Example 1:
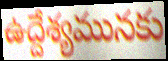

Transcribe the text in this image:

ఉద్దేశ్యమునకు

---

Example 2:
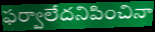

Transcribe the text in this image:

ఫర్వాలేదనిపించినా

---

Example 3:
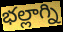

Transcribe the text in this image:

భల్లాగ్ని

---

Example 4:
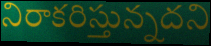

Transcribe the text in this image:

నిరాకరిస్తున్నదని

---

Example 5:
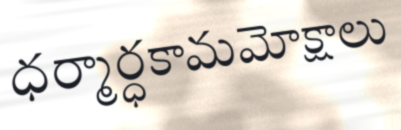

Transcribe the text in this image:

ధర్మార్ధకామమోక్షాలు